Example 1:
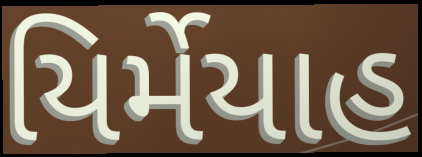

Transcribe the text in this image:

યિર્મેયાહ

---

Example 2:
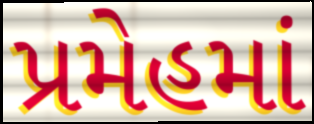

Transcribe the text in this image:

પ્રમેહમાં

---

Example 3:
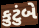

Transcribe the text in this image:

કુટુંબે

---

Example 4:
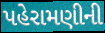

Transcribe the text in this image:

પહેરામણીની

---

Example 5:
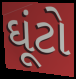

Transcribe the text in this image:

ઘૂંટો